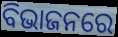
ବିଭାଜନରେ